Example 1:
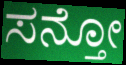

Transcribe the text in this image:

ಸನ್ತೋ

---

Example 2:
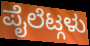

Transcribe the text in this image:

ಪೈಲೆಟ್ಗಳು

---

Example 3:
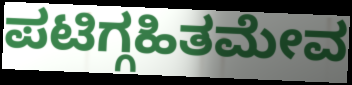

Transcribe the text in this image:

ಪಟಿಗ್ಗಹಿತಮೇವ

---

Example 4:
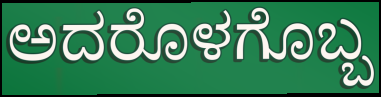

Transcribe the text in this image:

ಅದರೊಳಗೊಬ್ಬ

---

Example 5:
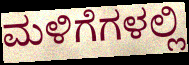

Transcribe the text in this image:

ಮಳಿಗೆಗಳಲ್ಲಿ